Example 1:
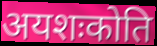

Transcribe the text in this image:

अयशःकोति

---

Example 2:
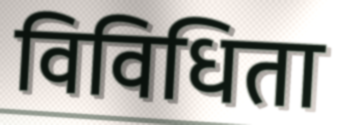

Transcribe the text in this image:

विविधिता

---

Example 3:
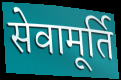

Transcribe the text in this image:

सेवामूर्ति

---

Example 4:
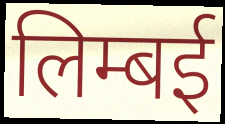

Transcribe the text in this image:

लिम्बई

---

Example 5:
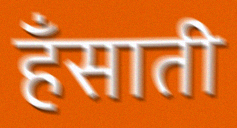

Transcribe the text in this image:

हँसाती